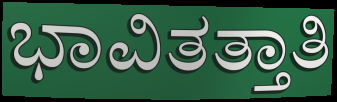
ಭಾವಿತತ್ತಾತಿ